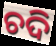
ଚଦି